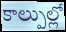
కాల్పుల్లో